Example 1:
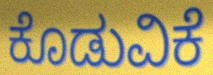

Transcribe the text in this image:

ಕೊಡುವಿಕೆ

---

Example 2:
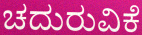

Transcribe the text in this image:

ಚದುರುವಿಕೆ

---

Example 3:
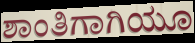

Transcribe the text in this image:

ಶಾಂತಿಗಾಗಿಯೂ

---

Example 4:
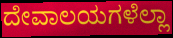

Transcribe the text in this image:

ದೇವಾಲಯಗಳೆಲ್ಲಾ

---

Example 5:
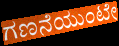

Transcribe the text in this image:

ಗಣನೆಯುಂಟೇ